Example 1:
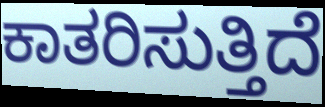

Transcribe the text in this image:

ಕಾತರಿಸುತ್ತಿದೆ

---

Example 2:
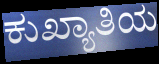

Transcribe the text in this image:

ಕುಖ್ಯಾತಿಯ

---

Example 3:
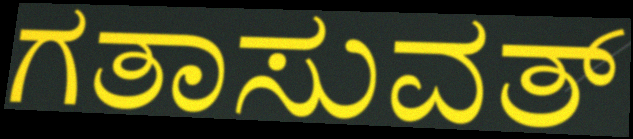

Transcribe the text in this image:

ಗತಾಸುವತ್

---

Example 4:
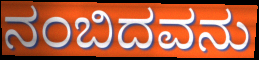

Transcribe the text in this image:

ನಂಬಿದವನು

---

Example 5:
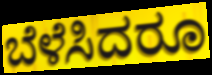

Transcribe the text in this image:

ಬೆಳೆಸಿದರೂ